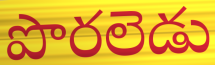
పొరలెడు